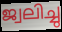
ജ്വലിച്ചു